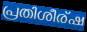
പ്രതിശീര്ഷ